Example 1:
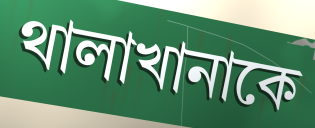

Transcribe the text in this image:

থালাখানাকে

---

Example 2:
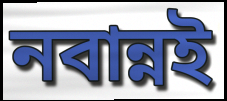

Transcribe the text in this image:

নবান্নই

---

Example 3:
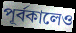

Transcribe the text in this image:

পূর্বকালেও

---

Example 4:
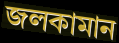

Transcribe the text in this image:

জলকামান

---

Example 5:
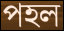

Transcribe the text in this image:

পহল